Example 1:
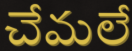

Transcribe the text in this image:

చేమలే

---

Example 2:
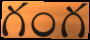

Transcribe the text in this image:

గంగ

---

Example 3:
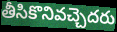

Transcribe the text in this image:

తీసికొనివచ్చెదరు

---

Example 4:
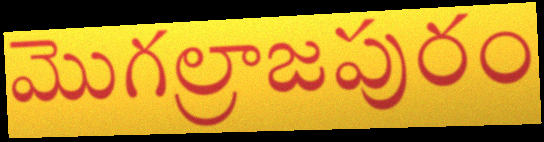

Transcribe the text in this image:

మొగల్రాజపురం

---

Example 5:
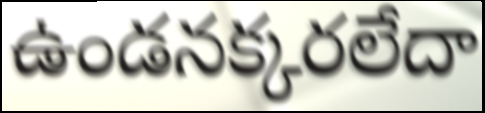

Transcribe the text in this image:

ఉండనక్కరలేదా